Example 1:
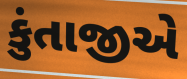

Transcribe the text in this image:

કુંતાજીએ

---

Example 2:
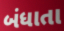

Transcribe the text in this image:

બંધાતા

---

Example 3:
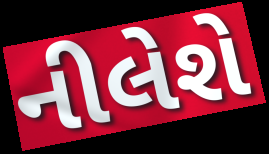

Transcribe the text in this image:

નીલેશે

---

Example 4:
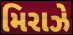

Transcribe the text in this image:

મિરાઝે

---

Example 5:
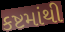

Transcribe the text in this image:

કષ્ટમાંથી